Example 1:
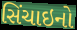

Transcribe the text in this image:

સિંચાઇનો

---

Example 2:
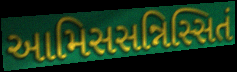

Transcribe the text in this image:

આમિસસન્નિસ્સિતં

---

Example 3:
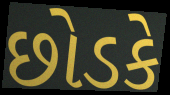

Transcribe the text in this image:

છોડકે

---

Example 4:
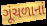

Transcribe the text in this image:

ગૂંચળાનાં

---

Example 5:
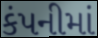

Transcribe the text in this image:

કંપનીમાં